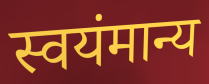
स्वयंमान्य